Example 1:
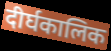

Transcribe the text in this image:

दीर्घकालिक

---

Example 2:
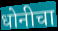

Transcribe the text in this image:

धोनीचा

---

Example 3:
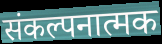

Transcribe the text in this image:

संकल्पनात्मक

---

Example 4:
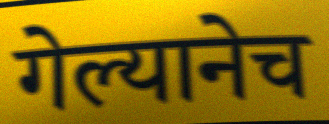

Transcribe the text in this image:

गेल्यानेच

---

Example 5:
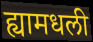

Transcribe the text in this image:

ह्यामधली